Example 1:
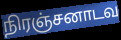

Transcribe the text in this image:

நிரஞ்சனாடவ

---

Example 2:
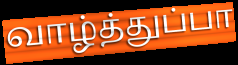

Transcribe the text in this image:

வாழ்த்துப்பா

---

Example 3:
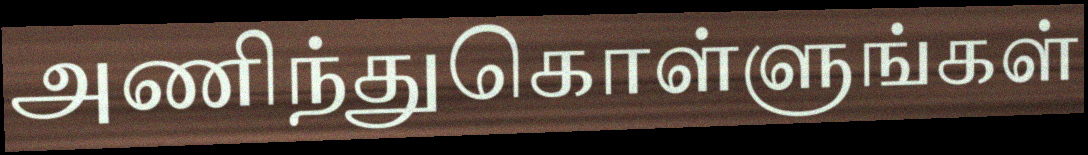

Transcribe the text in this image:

அணிந்துகொள்ளுங்கள்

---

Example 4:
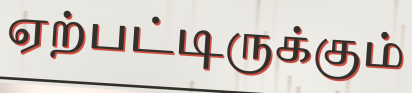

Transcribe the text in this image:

ஏற்பட்டிருக்கும்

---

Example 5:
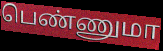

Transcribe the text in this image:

பெண்ணுமா